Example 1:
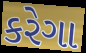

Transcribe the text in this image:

કરેગા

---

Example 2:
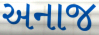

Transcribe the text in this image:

અનાજ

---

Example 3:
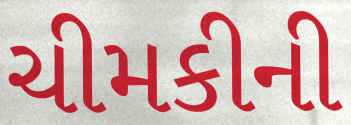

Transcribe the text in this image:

ચીમકીની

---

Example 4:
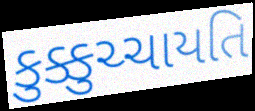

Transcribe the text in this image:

કુક્કુચ્ચાયતિ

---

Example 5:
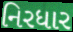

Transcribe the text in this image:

નિરધાર